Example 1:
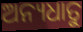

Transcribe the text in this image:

ଅନ୍ୟଧାତୁ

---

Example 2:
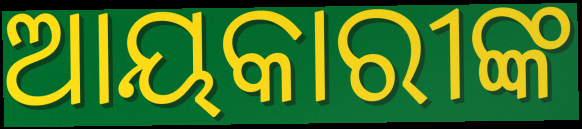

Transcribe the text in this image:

ଆୟକାରୀଙ୍କ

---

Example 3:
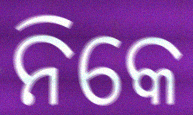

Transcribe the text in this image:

ନିକେ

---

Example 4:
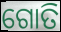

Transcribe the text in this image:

ଗୋତି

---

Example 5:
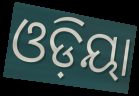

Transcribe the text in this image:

ଓଡ଼ିୟା